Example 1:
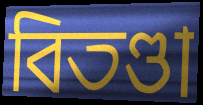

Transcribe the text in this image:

বিতণ্ডা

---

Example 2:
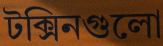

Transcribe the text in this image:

টক্সিনগুলো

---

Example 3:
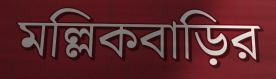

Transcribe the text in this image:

মল্লিকবাড়ির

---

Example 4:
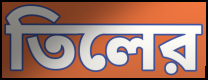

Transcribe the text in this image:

তিলের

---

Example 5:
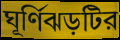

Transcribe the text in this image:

ঘূর্ণিঝড়টির